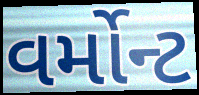
વર્મોન્ટ